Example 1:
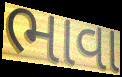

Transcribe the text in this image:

ભાવા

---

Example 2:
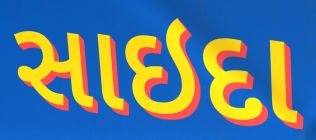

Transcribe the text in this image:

સાઇદા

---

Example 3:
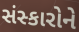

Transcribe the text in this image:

સંસ્કારોને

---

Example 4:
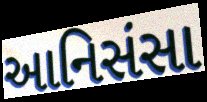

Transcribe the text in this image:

આનિસંસા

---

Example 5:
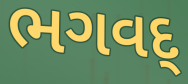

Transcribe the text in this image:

ભગવદ્